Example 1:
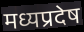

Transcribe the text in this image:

मध्यप्रदेष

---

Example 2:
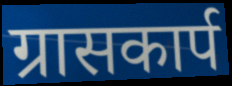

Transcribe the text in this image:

ग्रासकार्प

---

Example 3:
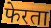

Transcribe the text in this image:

फेरता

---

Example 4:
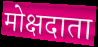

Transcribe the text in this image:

मोक्षदाता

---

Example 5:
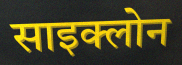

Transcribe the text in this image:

साइक्लोन